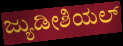
ಜ್ಯುಡೀಶಿಯಲ್